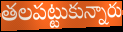
తలపట్టుకున్నారు